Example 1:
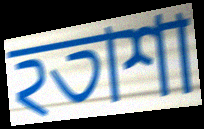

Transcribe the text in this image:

হতাশা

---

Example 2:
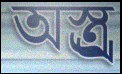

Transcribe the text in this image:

অস্ত্র্র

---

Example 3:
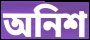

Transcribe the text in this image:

অনিশ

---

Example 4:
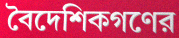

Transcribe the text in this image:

বৈদেশিকগণের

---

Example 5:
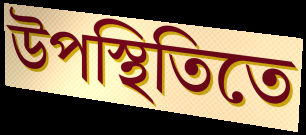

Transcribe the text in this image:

উপস্থিতিতে